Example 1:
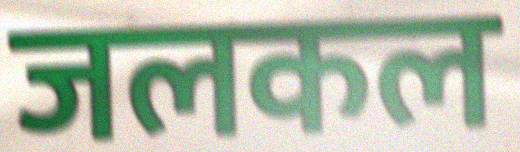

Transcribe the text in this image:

जलकल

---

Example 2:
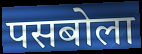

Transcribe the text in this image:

पसबोला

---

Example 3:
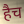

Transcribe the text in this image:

हैच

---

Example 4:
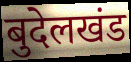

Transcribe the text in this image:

बुदेलखंड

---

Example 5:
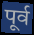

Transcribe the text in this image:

पूर्व